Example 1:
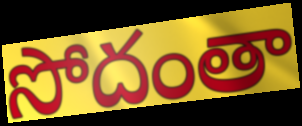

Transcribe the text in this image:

సోదంతా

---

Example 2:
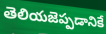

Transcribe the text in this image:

తెలియజెప్పడానికే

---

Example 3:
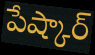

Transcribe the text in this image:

పేష్కార్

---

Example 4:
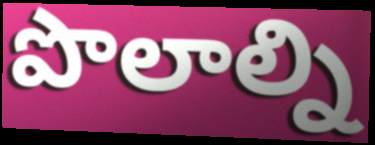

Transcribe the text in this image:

పొలాల్ని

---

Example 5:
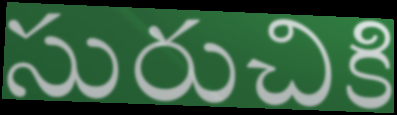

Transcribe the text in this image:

సురుచికి